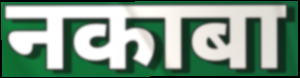
नकाबा